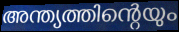
അന്ത്യത്തിന്റെയും